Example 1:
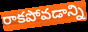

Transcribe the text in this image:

రాకపోవడాన్ని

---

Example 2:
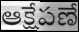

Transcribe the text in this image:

ఆక్షేపణే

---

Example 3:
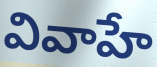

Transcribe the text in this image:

వివాహే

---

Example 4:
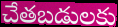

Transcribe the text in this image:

చేతబడులకు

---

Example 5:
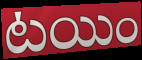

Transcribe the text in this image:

టయిం